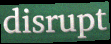
disrupt